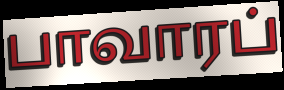
பாவாரப்